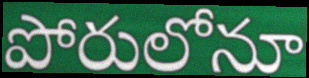
పోరులోనూ